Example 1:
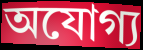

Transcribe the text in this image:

অযোগ্য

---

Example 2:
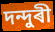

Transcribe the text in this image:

দন্দুৰী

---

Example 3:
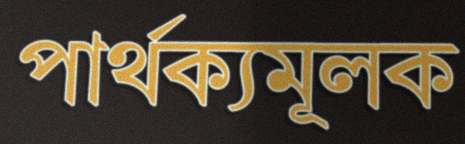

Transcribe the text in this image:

পাৰ্থক্যমূলক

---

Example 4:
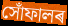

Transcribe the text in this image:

সোঁফালৰ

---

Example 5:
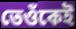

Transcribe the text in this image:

তেওঁকেই